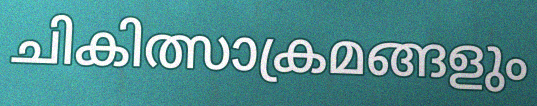
ചികിത്സാക്രമങ്ങളും